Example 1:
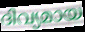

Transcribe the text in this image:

ദിവ്യമായ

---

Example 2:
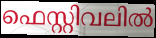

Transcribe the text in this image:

ഫെസ്റ്റിവലിൽ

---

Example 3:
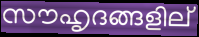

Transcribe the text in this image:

സൗഹൃദങ്ങളില്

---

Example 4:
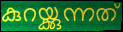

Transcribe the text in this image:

കുറയ്ക്കുന്നത്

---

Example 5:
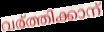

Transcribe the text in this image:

വര്ത്തിക്കാന്